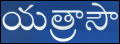
యత్రాసౌ